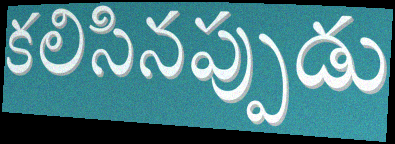
కలిసినప్పుడు